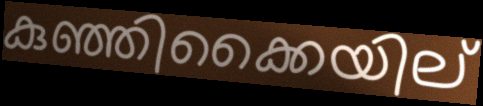
കുഞ്ഞിക്കൈയില്